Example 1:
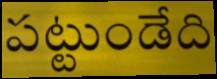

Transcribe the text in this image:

పట్టుండేది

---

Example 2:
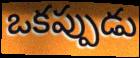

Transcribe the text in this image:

ఒకప్పుడు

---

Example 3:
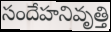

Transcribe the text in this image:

సందేహనివృత్తి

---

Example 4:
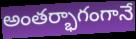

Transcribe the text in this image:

అంతర్భాగంగానే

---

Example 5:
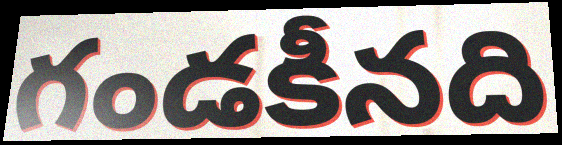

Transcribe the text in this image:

గండకీనది